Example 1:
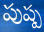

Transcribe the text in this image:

పుష్ప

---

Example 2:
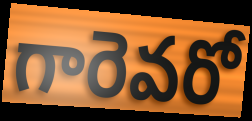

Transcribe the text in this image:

గారెవరో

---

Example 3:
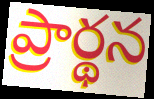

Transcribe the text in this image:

ప్రార్థన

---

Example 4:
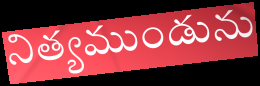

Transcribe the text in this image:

నిత్యముండును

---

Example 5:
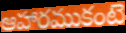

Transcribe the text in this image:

ఆహారముకంటె